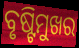
ବୃଷ୍ଟିମୁଖର